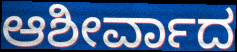
ಆಶೀರ್ವಾದ